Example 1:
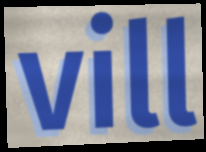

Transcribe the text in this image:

vill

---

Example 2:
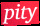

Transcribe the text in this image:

pity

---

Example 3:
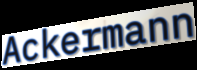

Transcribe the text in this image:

Ackermann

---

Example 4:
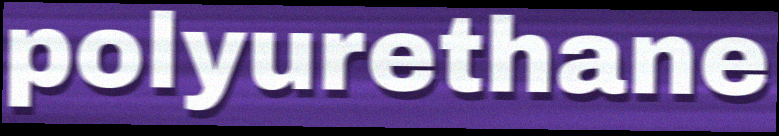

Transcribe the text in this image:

polyurethane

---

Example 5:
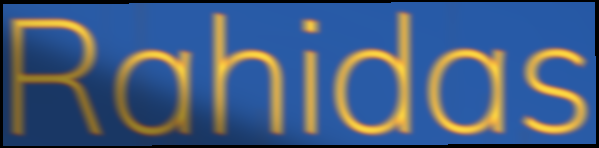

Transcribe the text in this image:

Rahidas